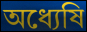
অধ্যেষি